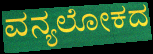
ವನ್ಯಲೋಕದ